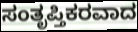
ಸಂತೃಪ್ತಿಕರವಾದ